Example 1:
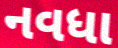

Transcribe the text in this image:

નવધા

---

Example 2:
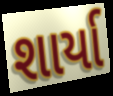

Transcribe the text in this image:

શાર્યા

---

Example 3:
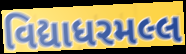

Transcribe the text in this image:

વિદ્યાધરમલ્લ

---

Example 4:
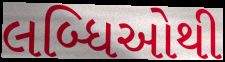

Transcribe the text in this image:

લબ્ધિઓથી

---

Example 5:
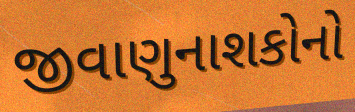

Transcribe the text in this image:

જીવાણુનાશકોનો